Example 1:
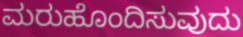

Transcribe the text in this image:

ಮರುಹೊಂದಿಸುವುದು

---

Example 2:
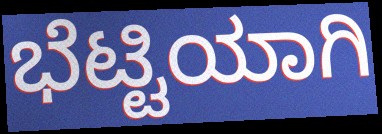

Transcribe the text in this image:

ಭೆಟ್ಟಿಯಾಗಿ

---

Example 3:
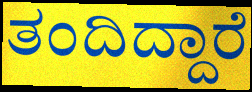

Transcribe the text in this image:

ತಂದಿದ್ದಾರೆ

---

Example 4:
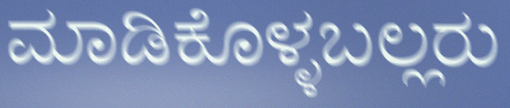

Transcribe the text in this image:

ಮಾಡಿಕೊಳ್ಳಬಲ್ಲರು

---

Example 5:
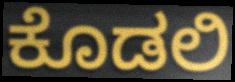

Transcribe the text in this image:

ಕೊಡಲಿ